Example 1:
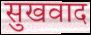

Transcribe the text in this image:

सुखवाद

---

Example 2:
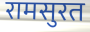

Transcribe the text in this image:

रामसुरत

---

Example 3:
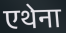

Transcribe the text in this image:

एथेना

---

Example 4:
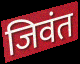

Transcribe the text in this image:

जिवंत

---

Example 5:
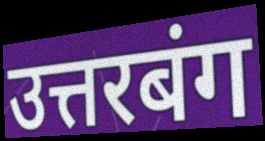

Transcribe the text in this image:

उत्तरबंग